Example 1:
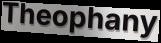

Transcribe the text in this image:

Theophany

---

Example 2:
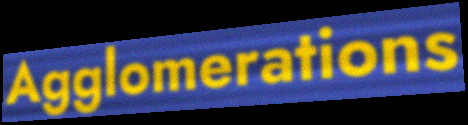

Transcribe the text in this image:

Agglomerations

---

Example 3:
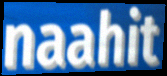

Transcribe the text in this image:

naahit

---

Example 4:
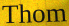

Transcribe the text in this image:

Thom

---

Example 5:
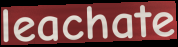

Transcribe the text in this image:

leachate